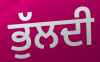
ਭੁੱਲਦੀ